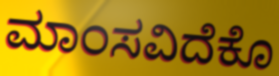
ಮಾಂಸವಿದೆಕೊ